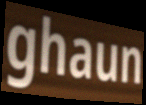
ghaun